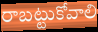
రాబట్టుకోవాలి